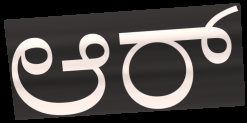
ಆರ್